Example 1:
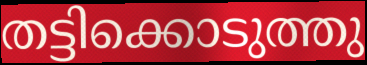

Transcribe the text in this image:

തട്ടിക്കൊടുത്തു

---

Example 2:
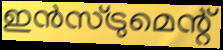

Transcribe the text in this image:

ഇൻസ്ട്രുമെന്റ്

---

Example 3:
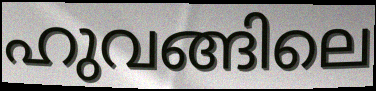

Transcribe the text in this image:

ഹുവങ്ങിലെ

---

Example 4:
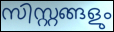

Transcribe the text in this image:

സിസ്റ്റങ്ങളും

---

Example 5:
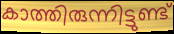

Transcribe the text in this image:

കാത്തിരുന്നിട്ടുണ്ട്